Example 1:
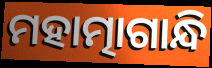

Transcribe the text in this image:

ମହାତ୍ମାଗାନ୍ଧି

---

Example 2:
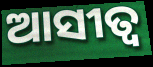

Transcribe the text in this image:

ଆସୀତ୍ବ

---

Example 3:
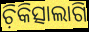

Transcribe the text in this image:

ଚ଼ିକିତ୍ସାଲାଗି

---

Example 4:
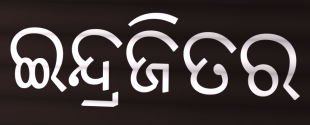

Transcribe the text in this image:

ଇନ୍ଦ୍ରଜିତର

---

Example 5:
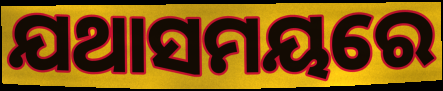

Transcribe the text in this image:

ଯଥାସମୟରେ